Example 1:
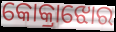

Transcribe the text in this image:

କୋକ୍ରାଝୋର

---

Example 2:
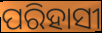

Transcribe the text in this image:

ପରିହାସୀ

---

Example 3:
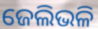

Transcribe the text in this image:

ଜେଲିଭଳି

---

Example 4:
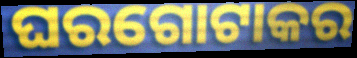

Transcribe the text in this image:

ଘରଗୋଟାକର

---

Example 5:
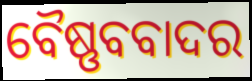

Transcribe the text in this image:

ବୈଷ୍ଣବବାଦର